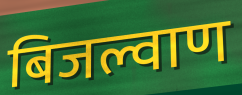
बिजल्वाण